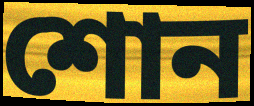
শোন